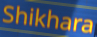
Shikhara